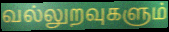
வல்லுறவுகளும்